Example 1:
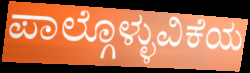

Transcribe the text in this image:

ಪಾಲ್ಗೊಳ್ಳುವಿಕೆಯ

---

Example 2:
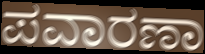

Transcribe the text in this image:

ಪವಾರಣಾ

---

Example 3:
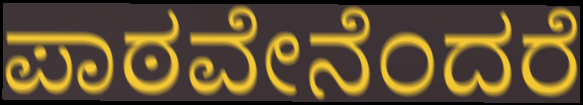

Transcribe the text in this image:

ಪಾಠವೇನೆಂದರೆ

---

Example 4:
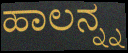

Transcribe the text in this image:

ಹಾಲನ್ನ್ನ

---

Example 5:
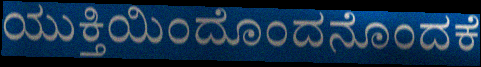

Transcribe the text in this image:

ಯುಕ್ತಿಯಿಂದೊಂದನೊಂದಕೆ